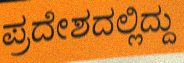
ಪ್ರದೇಶದಲ್ಲಿದ್ದು